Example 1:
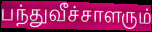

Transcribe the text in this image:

பந்துவீச்சாளரும்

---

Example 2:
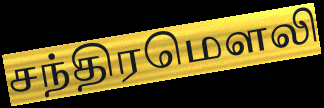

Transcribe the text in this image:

சந்திரமௌலி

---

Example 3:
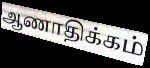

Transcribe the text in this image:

ஆணாதிக்கம்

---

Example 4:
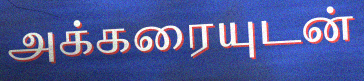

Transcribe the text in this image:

அக்கரையுடன்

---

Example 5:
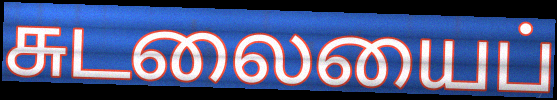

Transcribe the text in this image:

சுடலையைப்